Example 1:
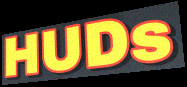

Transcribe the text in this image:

HUDs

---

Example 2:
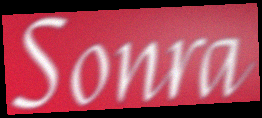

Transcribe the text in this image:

Sonra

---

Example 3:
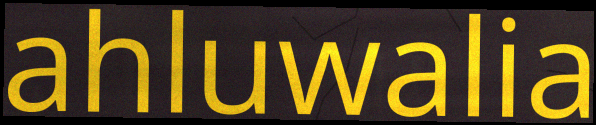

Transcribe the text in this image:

ahluwalia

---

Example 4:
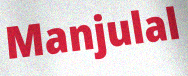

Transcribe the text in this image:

Manjulal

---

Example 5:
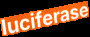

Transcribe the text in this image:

luciferase